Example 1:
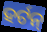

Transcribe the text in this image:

ହର୍ଟନ୍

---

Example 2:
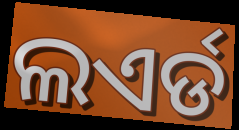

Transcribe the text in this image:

ଲଏର୍ଡ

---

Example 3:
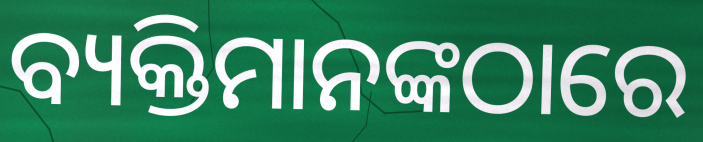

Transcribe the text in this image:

ବ୍ୟକ୍ତିମାନଙ୍କଠାରେ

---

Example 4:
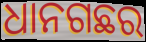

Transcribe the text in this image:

ଧାନଗଛର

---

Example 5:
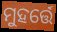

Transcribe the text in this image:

ମୁହର୍ତ୍ତେ